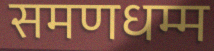
समणधम्म